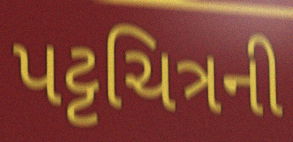
પટ્ટચિત્રની